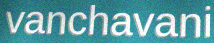
vanchavani